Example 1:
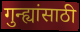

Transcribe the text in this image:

गुन्ह्यांसाठी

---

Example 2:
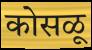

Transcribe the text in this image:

कोसळू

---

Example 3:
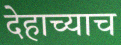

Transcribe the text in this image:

देहाच्याच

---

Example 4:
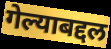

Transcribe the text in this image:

गेल्याबद्दल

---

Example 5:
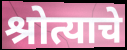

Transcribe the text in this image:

श्रोत्याचे